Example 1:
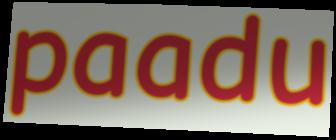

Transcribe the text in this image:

paadu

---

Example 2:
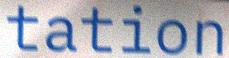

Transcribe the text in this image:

tation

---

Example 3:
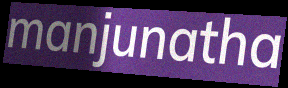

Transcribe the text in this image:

manjunatha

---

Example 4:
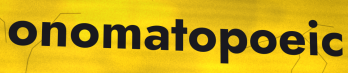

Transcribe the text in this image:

onomatopoeic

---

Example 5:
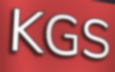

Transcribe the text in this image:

KGS